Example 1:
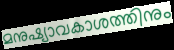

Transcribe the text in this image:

മനുഷ്യാവകാശത്തിനും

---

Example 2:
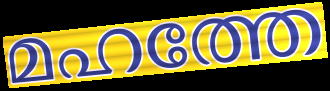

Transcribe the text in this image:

മഹത്തേ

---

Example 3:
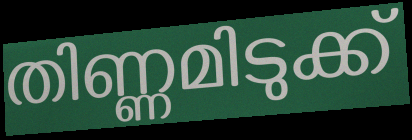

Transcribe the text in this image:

തിണ്ണമിടുക്ക്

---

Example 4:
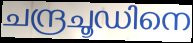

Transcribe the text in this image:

ചന്ദ്രചൂഡിനെ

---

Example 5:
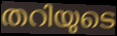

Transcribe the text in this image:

തറിയുടെ